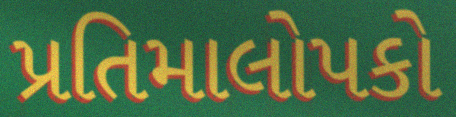
પ્રતિમાલોપકો